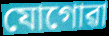
যোগোৱা